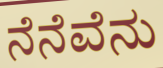
ನೆನೆವೆನು